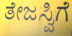
ತೇಜಸ್ವಿಗೆ